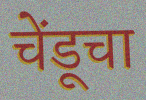
चेंडूचा